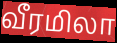
வீரமிலா